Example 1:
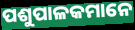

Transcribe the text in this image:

ପଶୁପାଳକମାନେ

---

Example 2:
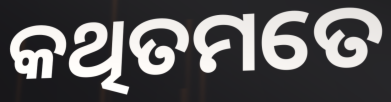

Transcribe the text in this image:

କଥିତମତେ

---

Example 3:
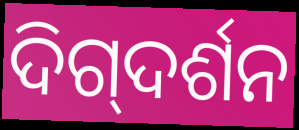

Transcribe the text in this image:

ଦିଗ୍‌ଦର୍ଶନ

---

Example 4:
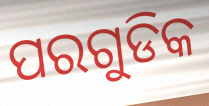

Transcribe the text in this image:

ପରଗୁଡିକ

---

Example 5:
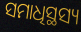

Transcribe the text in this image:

ସମାଧିସ୍ଥସ୍ୟ